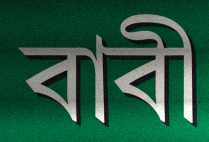
বাবী